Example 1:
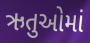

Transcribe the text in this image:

ઋતુઓમાં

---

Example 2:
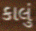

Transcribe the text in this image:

કાલું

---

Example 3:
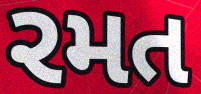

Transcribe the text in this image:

રમત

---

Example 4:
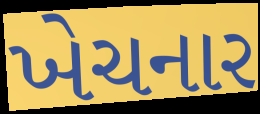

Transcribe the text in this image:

ખેચનાર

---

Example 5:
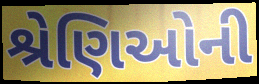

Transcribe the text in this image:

શ્રેણિઓની